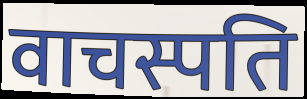
वाचस्पति